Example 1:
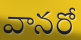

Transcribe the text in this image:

వానరో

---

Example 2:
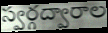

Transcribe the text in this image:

స్వర్గద్వారాల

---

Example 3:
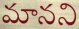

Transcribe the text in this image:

మానని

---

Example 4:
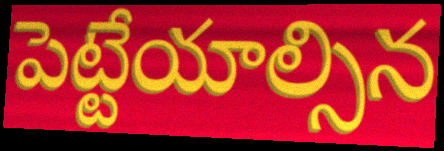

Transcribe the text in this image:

పెట్టేయాల్సిన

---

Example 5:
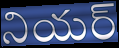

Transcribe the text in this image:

నియర్